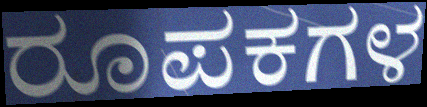
ರೂಪಕಗಳ